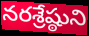
నరశ్రేష్ఠుని